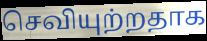
செவியுற்றதாக